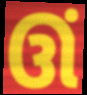
ઊં